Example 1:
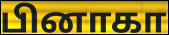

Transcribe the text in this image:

பினாகா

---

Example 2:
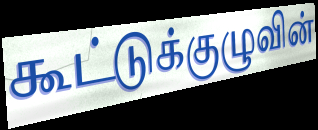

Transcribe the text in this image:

கூட்டுக்குழுவின்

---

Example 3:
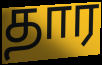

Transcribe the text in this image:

தார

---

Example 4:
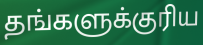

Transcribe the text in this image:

தங்களுக்குரிய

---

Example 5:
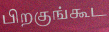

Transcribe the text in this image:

பிறகுங்கூட